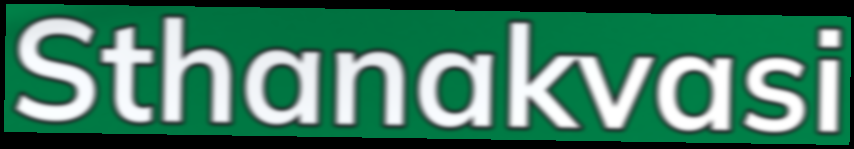
Sthanakvasi